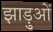
झाड़ुओं